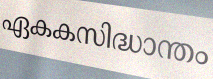
ഏകകസിദ്ധാന്തം